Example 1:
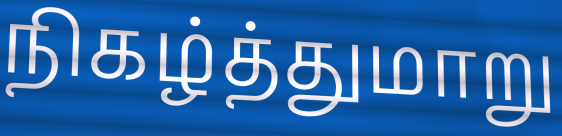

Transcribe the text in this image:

நிகழ்த்துமாறு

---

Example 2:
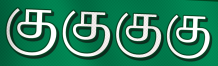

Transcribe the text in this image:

குகுகுகு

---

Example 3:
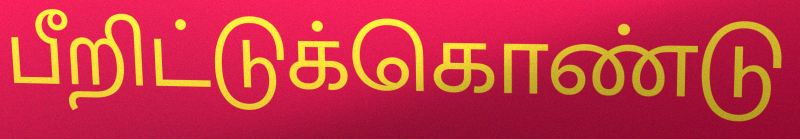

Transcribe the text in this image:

பீறிட்டுக்கொண்டு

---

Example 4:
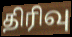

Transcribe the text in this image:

திரிவு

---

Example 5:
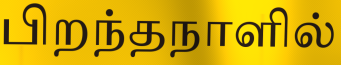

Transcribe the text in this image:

பிறந்தநாளில்